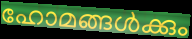
ഹോമങ്ങൾക്കും